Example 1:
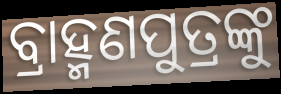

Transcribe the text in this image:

ବ୍ରାହ୍ମଣପୁତ୍ରଙ୍କୁ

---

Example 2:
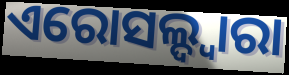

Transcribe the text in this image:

ଏରୋସଲ୍ଦ୍ୱାରା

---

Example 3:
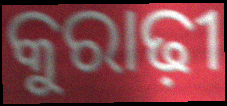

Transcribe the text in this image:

କୁରାଢ଼ୀ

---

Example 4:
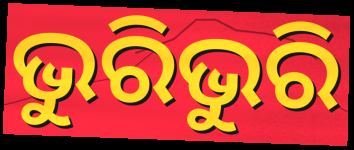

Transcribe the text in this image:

ଭୁରିଭୁରି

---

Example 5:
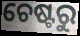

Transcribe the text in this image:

ଚେଷ୍ଟରୁ